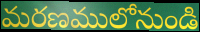
మరణములోనుండి